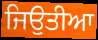
ਜਿਉਤੀਆ